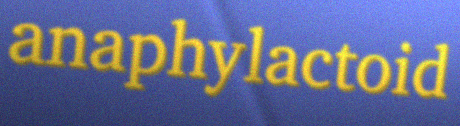
anaphylactoid